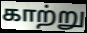
காற்று